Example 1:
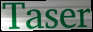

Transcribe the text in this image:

Taser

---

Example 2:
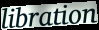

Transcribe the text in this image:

libration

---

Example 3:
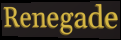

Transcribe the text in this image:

Renegade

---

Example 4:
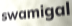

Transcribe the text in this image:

swamigal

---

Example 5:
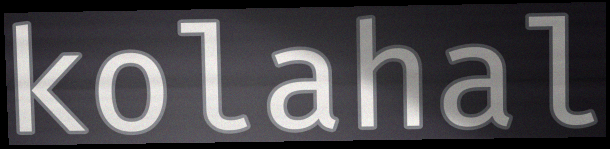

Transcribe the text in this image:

kolahal